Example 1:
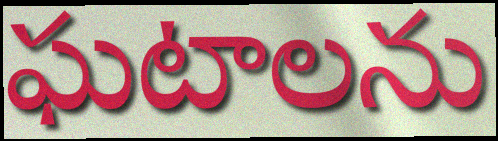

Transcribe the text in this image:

ఘటాలను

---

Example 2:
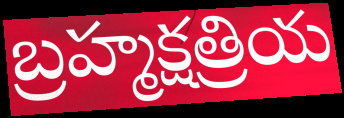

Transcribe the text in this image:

బ్రహ్మక్షత్రియ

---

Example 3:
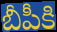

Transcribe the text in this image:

బీపీకి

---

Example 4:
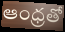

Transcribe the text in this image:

ఆంధ్రతో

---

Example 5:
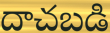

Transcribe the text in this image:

దాచబడి